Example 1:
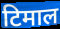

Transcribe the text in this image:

टिमाल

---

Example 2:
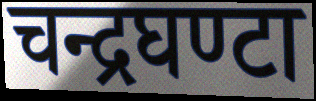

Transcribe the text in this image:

चन्द्रघण्टा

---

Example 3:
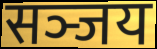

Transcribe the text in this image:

सञ्जय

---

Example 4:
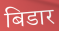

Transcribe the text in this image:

बिडार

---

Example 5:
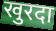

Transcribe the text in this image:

खुरदा